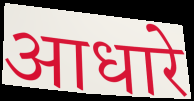
आधारे